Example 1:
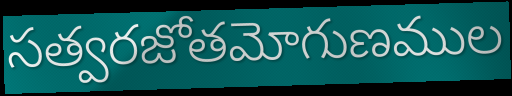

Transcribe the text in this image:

సత్వరజోతమోగుణముల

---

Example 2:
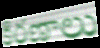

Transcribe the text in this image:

కిరణాలు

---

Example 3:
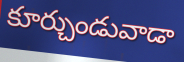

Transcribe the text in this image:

కూర్చుండువాడా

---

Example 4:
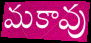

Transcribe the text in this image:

మకావు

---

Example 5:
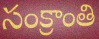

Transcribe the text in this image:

సంక్రాంతి